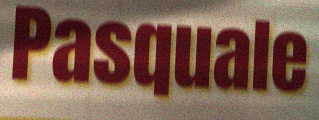
Pasquale